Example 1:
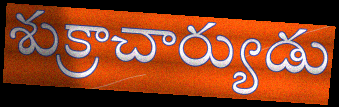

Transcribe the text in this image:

శుక్రాచార్యుడు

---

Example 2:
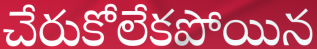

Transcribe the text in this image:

చేరుకోలేకపోయిన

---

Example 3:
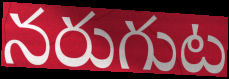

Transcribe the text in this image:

నరుగుట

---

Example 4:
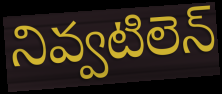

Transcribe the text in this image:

నివ్వటిలెన్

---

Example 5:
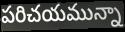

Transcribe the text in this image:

పరిచయమున్నా